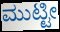
ಮುಟ್ಟೀ